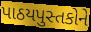
પાઠયપુસ્તકોને